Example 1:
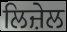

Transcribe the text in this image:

ਲਿਜ਼ੇਲ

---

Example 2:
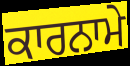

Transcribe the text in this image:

ਕਾਰਨਾਮੇ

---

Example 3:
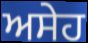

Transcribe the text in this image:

ਅਸੇਹ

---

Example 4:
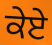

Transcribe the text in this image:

ਕੇਏ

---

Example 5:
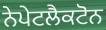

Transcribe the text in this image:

ਨੇਪੇਟਲੈਕਟੋਨ